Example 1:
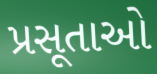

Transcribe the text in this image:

પ્રસૂતાઓ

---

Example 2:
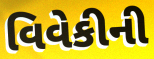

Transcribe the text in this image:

વિવેકીની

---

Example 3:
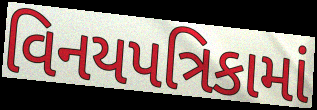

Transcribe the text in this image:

વિનયપત્રિકામાં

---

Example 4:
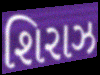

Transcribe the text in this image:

શિરાઝ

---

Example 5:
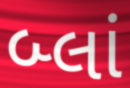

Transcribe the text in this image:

બ્લાં